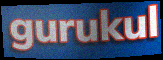
gurukul